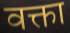
वक्ता